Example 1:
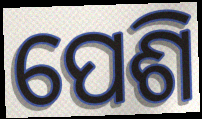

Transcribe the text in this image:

ପେଶି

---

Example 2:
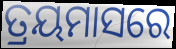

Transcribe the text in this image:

ତ୍ରୟମାସରେ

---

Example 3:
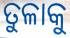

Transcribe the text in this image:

ତୁଳାକୁ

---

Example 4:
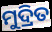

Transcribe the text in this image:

ମୁଦ୍ରିତ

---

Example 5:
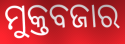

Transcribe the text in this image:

ମୁକ୍ତବଜାର